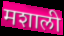
मशाली